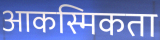
आकस्मिकता